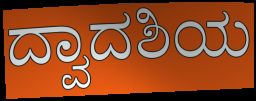
ದ್ವಾದಶಿಯ